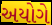
અયોગે